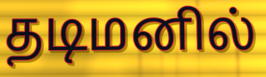
தடிமனில்